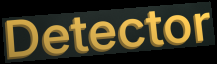
Detector